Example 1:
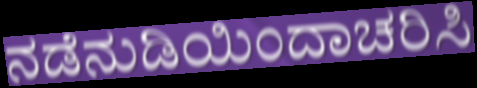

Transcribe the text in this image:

ನಡೆನುಡಿಯಿಂದಾಚರಿಸಿ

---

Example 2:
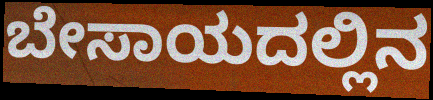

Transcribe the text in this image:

ಬೇಸಾಯದಲ್ಲಿನ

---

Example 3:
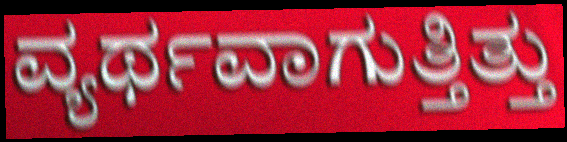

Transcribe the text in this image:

ವ್ಯರ್ಥವಾಗುತ್ತಿತ್ತು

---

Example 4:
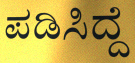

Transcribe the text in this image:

ಪಡಿಸಿದ್ದೆ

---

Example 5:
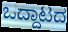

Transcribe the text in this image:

ಒದ್ದಾಟದ